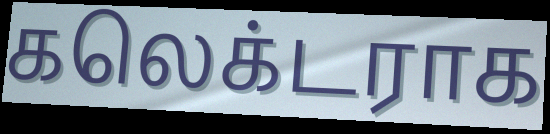
கலெக்டராக